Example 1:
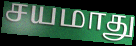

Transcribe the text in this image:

சயமாது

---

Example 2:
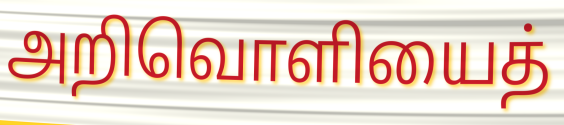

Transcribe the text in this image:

அறிவொளியைத்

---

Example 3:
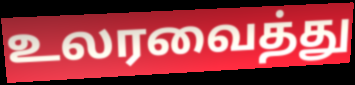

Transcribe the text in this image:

உலரவைத்து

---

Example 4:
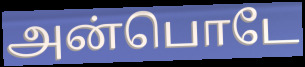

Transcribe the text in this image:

அன்பொடே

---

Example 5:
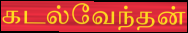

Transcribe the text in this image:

கடல்வேந்தன்